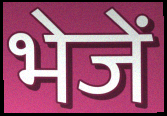
भेजें